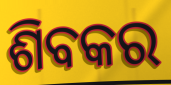
ଶିବକର